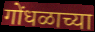
गोंधळाच्या